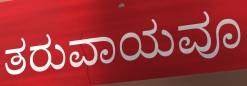
ತರುವಾಯವೂ